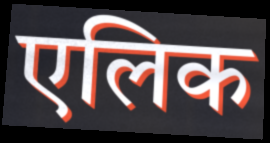
एलिक